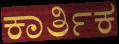
ಕಾರ್ತಿಕ